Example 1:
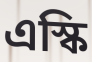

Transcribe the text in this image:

এস্কি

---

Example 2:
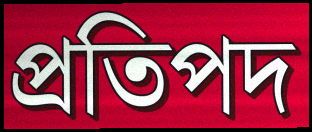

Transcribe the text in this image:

প্রতিপদ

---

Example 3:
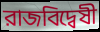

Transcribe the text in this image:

রাজবিদ্বেষী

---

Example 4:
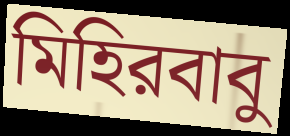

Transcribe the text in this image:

মিহিরবাবু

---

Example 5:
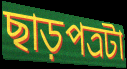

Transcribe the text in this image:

ছাড়পত্রটা